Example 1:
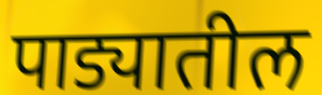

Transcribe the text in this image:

पाड्यातील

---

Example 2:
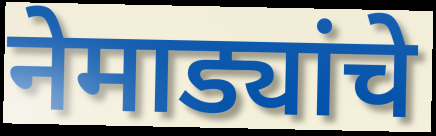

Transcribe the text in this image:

नेमाड्यांचे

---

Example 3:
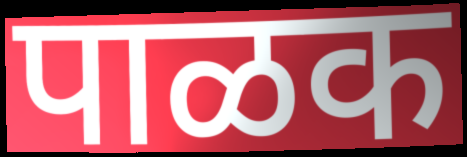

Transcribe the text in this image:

पाळक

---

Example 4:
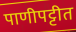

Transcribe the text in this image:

पाणीपट्टीत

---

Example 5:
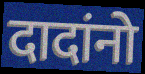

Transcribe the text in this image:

दादांनो